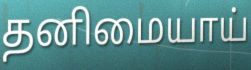
தனிமையாய்